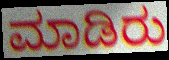
ಮಾಡಿರು